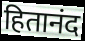
हितानंद